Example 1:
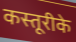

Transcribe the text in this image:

कस्तूरीके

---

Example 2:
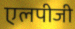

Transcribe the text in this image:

एलपीजी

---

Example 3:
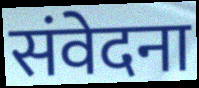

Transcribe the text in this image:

संवेदना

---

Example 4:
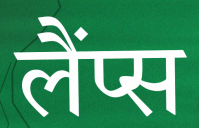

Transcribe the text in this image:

लैंप्स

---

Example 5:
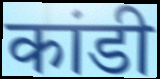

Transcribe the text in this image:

कांडी